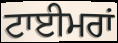
ਟਾਈਮਰਾਂ